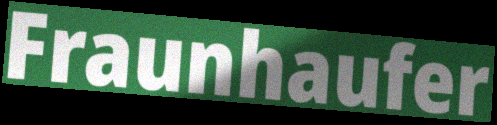
Fraunhaufer